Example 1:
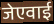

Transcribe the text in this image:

जेएवाई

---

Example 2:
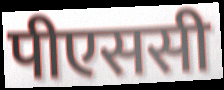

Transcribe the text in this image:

पीएससी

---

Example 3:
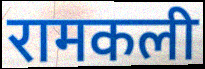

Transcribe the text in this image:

रामकली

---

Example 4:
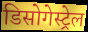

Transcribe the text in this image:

डिसोगेस्ट्रेल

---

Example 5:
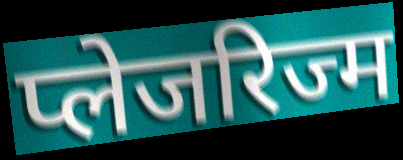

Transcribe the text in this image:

प्लेजरिज्म